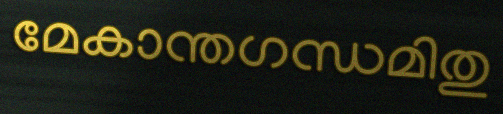
മേകാന്തഗന്ധമിതു